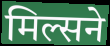
मिल्सने